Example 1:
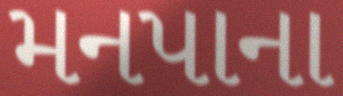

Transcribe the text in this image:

મનપાના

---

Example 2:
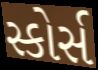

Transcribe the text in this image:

સ્કોર્સ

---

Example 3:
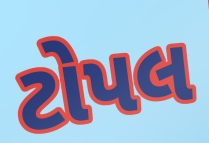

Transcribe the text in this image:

ટોપલ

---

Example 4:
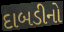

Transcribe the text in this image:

દાબડીનો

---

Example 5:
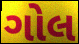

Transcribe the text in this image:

ગોલ